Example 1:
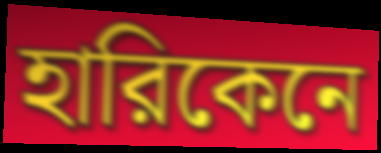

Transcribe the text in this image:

হারিকেনে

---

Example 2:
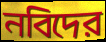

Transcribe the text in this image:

নবিদের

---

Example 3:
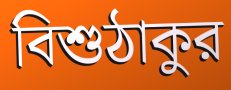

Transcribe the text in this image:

বিশুঠাকুর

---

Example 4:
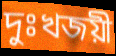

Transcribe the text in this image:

দুঃখজয়ী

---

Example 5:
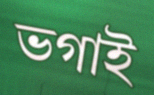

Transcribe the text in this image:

ভগাই